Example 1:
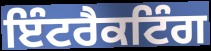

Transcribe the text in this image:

ਇੰਟਰੈਕਟਿੰਗ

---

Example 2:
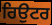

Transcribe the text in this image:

ਰਿਉਟਰ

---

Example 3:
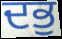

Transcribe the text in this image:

ਦਭੁ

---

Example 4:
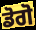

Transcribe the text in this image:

ਡੋਗੋ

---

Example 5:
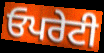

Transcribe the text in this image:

ਓਪਰੇਟੀ